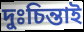
দুঃচিন্তাই